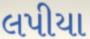
લપીયા